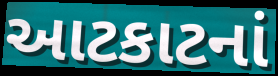
આટકાટનાં